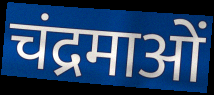
चंद्रमाओं